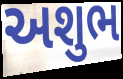
અશુભ